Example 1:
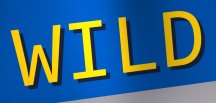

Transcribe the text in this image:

WILD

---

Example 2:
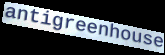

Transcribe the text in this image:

antigreenhouse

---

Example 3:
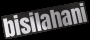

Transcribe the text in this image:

bisilahani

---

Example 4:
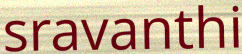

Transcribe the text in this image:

sravanthi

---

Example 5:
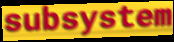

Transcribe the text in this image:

subsystem